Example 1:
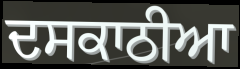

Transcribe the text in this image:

ਦਸਕਾਠੀਆ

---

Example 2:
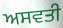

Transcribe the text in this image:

ਅਸਵਤੀ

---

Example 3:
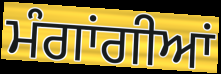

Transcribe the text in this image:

ਮੰਗਾਂਗੀਆਂ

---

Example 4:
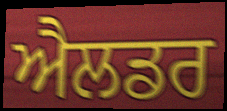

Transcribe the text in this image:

ਐਲਡਰ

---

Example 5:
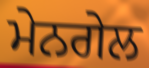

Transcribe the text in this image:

ਮੇਨਗੇਲ